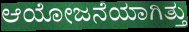
ಆಯೋಜನೆಯಾಗಿತ್ತು